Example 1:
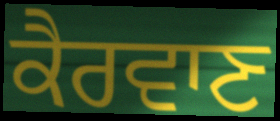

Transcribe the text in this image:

ਕੈਰਵਾਣ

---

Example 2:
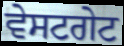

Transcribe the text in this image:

ਵੇਸਟਗੇਟ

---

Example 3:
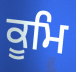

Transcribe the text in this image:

ਕੂਮਿ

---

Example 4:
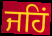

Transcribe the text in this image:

ਜਹਿਂ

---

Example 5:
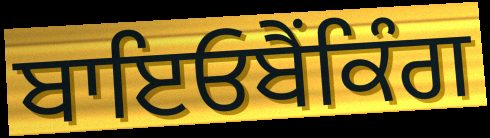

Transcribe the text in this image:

ਬਾਇਓਬੈਂਕਿੰਗ